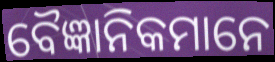
ବୈଜ୍ଞାନିକମାନେ